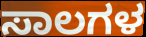
ಸಾಲಗಳ